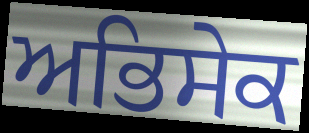
ਅਭਿਸੇਕ